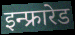
इन्फ्रारेड